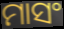
ମାସଂ